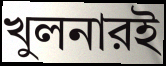
খুলনারই